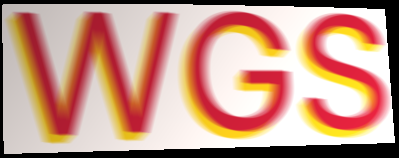
WGS